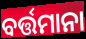
ବର୍ତ୍ତମାନା